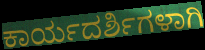
ಕಾರ್ಯದರ್ಶಿಗಳಾಗಿ